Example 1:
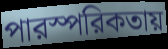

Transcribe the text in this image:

পারস্পরিকতায়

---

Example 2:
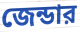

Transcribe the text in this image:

জেন্ডার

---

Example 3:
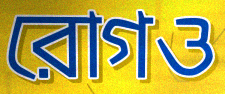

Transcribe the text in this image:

রোগও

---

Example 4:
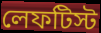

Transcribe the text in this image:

লেফটিস্ট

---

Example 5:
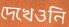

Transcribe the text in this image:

দেখেওনি